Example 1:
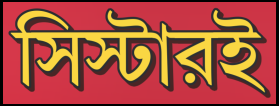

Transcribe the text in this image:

সিস্টারই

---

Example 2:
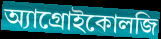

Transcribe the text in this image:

অ্যাগ্রোইকোলজি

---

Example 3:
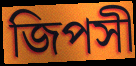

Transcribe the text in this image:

জিপসী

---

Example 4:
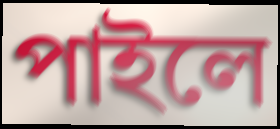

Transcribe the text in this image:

পাইলে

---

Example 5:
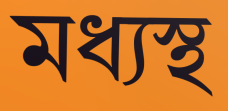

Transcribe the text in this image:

মধ্যস্থ